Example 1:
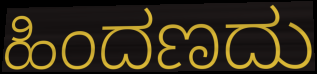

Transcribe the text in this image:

ಹಿಂದಣದು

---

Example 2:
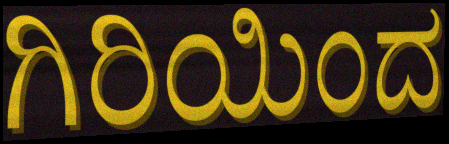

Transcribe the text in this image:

ಗಿರಿಯಿಂದ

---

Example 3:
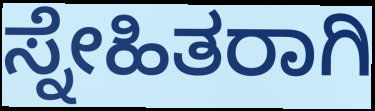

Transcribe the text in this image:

ಸ್ನೇಹಿತರಾಗಿ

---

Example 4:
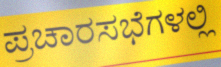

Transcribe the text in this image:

ಪ್ರಚಾರಸಭೆಗಳಲ್ಲಿ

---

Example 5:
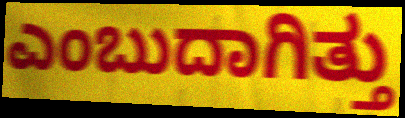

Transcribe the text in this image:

ಎಂಬುದಾಗಿತ್ತು